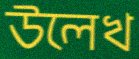
উলেখ